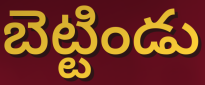
బెట్టిండు